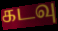
கடவு